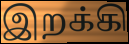
இறக்கி